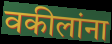
वकीलांना